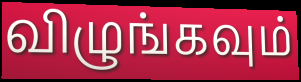
விழுங்கவும்